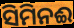
ସିମିନଈ